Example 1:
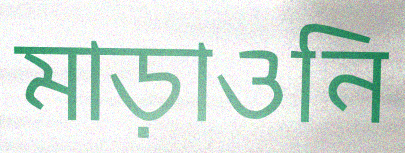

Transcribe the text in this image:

মাড়াওনি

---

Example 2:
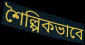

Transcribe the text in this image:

শৈল্পিকভাবে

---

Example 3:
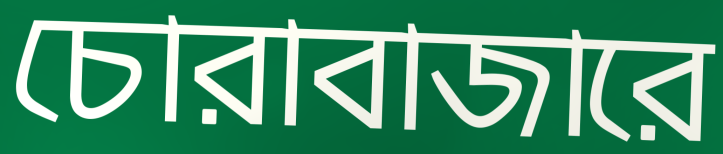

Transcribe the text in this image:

চোরাবাজারে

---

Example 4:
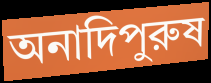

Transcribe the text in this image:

অনাদিপুরুষ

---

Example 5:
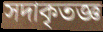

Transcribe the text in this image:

সদাকৃতজ্ঞ